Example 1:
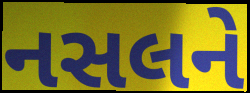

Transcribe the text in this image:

નસલને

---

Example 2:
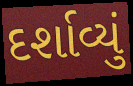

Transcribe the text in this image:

દર્શાવ્યું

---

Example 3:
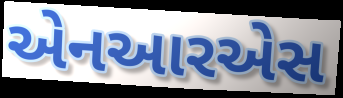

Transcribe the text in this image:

એનઆરએસ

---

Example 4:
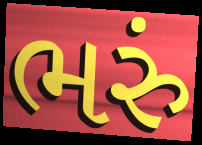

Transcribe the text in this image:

ભરું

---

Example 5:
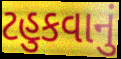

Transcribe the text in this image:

ટહુકવાનું